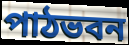
পাঠভবন